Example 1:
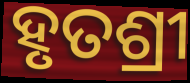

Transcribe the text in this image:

ହୃତଶ୍ରୀ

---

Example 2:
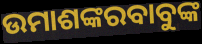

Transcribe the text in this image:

ଉମାଶଙ୍କରବାବୁଙ୍କ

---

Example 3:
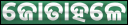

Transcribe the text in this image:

ଜୋତାହଳେ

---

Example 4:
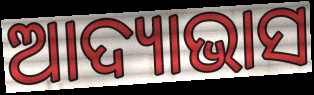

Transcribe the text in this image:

ଆଦ୍ୟାଭାସ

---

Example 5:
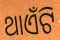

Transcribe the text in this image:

ଥାଏଁଟି